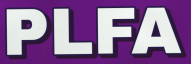
PLFA